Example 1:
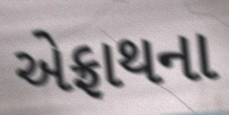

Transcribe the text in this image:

એફ્રાથના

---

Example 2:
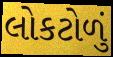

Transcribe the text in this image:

લોકટોળું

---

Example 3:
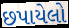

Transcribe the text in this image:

છપાયેલો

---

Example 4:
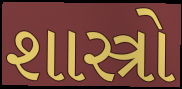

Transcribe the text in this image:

શાસ્ત્રો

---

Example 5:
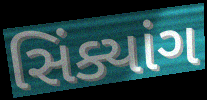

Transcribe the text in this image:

સિંક્યાંગ